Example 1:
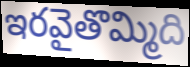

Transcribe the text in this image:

ఇరవైతొమ్మిది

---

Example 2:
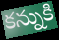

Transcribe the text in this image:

కన్నుకి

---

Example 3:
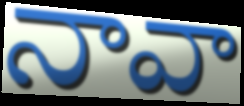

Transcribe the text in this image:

నావా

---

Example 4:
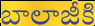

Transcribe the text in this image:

బాలాజీకి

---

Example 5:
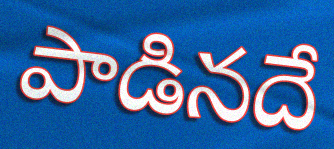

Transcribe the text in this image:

పాడినదే